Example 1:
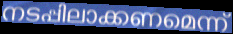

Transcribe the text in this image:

നടപ്പിലാക്കണമെന്ന്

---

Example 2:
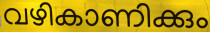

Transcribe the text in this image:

വഴികാണിക്കും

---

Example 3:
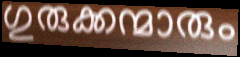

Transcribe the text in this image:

ഗുരുക്കന്മാരും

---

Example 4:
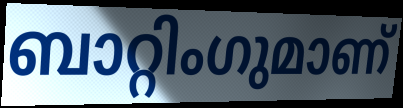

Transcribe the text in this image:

ബാറ്റിംഗുമാണ്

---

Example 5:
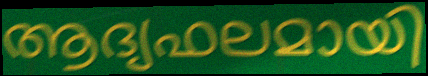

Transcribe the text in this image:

ആദ്യഫലമായി